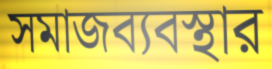
সমাজব্যবস্থার